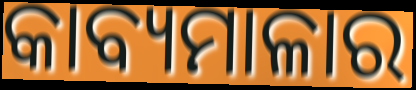
କାବ୍ୟମାଳାର